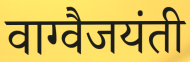
वाग्वैजयंती